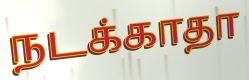
நடக்காதா